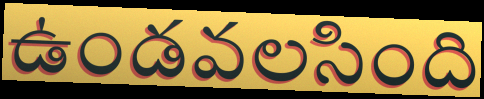
ఉండవలసింది